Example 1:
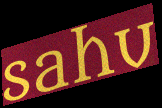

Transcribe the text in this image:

sahu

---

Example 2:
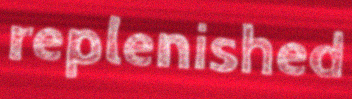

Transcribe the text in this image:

replenished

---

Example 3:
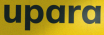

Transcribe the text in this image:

upara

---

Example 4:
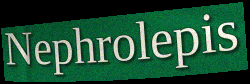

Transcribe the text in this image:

Nephrolepis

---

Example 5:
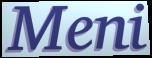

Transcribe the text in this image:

Meni